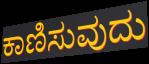
ಕಾಣಿಸುವುದು